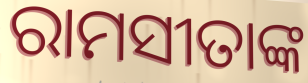
ରାମସୀତାଙ୍କ